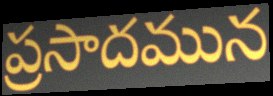
ప్రసాదమున